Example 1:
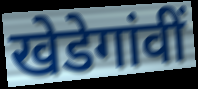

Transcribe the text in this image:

खेडेगांवीं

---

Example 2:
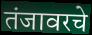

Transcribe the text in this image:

तंजावरचे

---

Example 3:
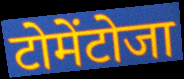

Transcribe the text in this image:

टोमेंटोजा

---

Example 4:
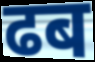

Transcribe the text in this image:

ढब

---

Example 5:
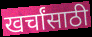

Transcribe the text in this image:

खर्चांसाठी